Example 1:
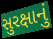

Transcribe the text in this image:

સુરક્ષાનું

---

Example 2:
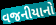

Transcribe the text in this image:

વજનીયાનો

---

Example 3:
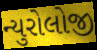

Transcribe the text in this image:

ન્યુરોલોજી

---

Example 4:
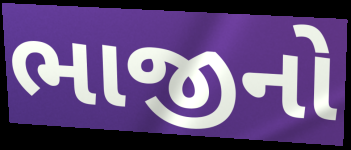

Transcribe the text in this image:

ભાજીનો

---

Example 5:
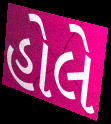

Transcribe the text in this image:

હોલે